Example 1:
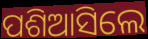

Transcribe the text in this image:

ପଶିଆସିଲେ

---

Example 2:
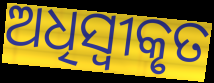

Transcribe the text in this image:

ଅଧିସ୍ୱୀକୃତ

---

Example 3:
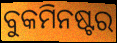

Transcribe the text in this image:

ବୁକମିନଷ୍ଟର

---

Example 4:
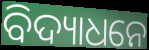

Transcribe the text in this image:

ବିଦ୍ୟାଧନେ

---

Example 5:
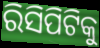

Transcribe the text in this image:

ରିସିପିଟିକୁ